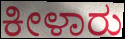
ಕೀಳಾರು